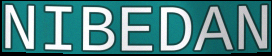
NIBEDAN